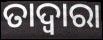
ତାଦ୍ବାରା